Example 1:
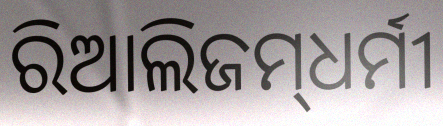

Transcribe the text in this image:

ରିଆଲିଜମ୍‌ଧର୍ମୀ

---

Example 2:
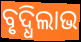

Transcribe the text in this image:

ବୃଦ୍ଧିଲାଭ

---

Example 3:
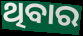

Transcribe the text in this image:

ଥିବାର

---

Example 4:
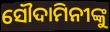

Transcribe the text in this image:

ସୌଦାମିନୀଙ୍କୁ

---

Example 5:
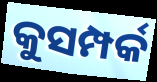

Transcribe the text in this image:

କୁସମ୍ପର୍କ